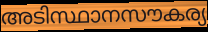
അടിസ്ഥാനസൗകര്യ